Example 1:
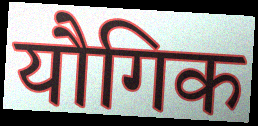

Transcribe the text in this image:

यौगिक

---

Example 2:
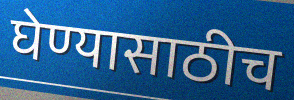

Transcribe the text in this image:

घेण्यासाठीच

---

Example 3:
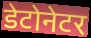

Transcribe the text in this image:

डेटोनेटर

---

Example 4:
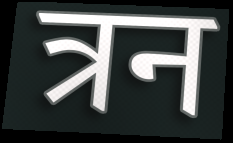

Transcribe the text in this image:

त्रन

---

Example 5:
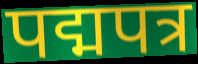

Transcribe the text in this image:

पद्मपत्र